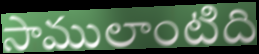
సాములాంటిది